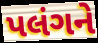
પલંગને